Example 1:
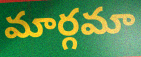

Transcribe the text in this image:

మార్గమా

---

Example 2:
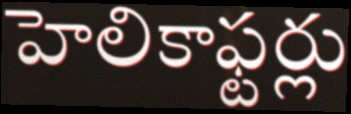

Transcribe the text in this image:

హెలికాఫ్టర్లు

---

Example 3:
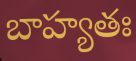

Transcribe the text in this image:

బాహ్యతః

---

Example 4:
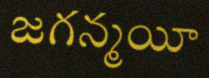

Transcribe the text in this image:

జగన్మయీ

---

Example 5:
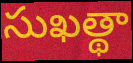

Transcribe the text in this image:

సుఖత్థా